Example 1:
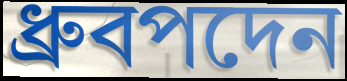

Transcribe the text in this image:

ধ্রুবপদেন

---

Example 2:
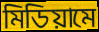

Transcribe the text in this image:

মিডিয়ামে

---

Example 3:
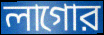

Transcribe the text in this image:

লাগোর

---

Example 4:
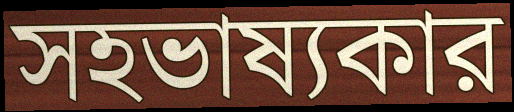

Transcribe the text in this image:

সহভাষ্যকার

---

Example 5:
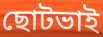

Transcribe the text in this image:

ছোটভাই